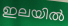
ഇലയിൽ